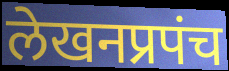
लेखनप्रपंच